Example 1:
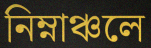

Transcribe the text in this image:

নিম্নাঞ্চলে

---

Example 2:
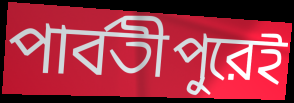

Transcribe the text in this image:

পার্বতীপুরেই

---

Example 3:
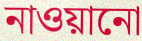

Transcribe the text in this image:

নাওয়ানো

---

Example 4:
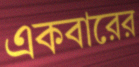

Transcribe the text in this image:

একবারের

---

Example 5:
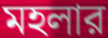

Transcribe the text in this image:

মহলার